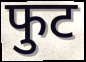
फुट